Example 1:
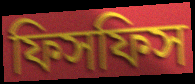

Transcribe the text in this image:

ফিসফিস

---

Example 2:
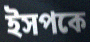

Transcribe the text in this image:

ইসপকে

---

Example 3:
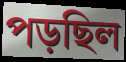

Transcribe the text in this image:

পড়ছিল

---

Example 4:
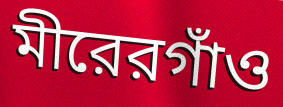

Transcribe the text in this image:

মীরেরগাঁও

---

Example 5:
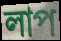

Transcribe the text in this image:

লাপ